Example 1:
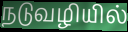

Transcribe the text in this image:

நடுவழியில்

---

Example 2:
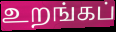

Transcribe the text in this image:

உறங்கப்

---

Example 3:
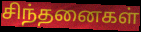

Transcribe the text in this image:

சிந்தனைகள்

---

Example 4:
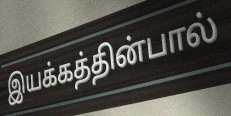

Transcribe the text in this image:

இயக்கத்தின்பால்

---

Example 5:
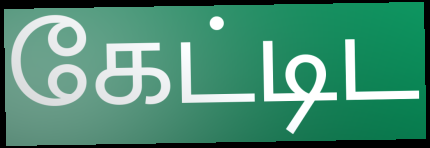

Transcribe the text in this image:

கேட்டிட